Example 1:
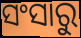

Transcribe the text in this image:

ସଂସାରୁ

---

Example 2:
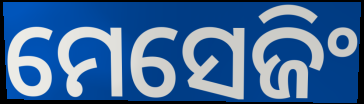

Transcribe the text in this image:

ମେସେଜିଂ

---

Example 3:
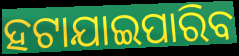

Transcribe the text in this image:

ହଟାଯାଇପାରିବ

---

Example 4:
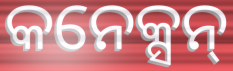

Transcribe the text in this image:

କନେକ୍ସନ୍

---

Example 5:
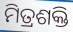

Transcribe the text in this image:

ମିତ୍ରଶକ୍ତି